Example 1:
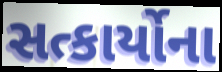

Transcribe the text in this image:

સત્કાર્યોના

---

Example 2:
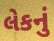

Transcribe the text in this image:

લેકનું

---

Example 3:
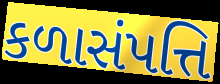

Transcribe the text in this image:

કળાસંપત્તિ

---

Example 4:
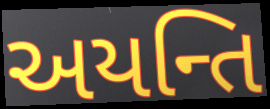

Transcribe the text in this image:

અયન્તિ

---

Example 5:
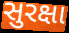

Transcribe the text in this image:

સુરક્ષા